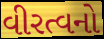
વીરત્વનો